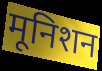
मूनिशन